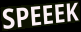
SPEEEK